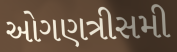
ઓગણત્રીસમી